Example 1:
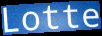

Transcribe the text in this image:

Lotte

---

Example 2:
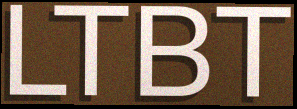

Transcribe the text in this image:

LTBT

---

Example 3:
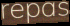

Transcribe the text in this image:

repas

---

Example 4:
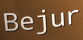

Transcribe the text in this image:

Bejur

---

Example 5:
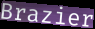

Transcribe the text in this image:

Brazier